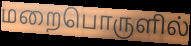
மறைபொருளில்